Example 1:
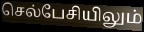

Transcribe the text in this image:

செல்பேசியிலும்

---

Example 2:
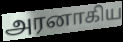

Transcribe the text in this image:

அரனாகிய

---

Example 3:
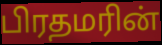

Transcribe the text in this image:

பிரதமரின்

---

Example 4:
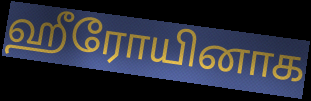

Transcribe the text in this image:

ஹீரோயினாக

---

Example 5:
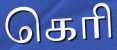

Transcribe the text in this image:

கெரி